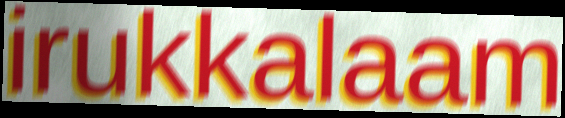
irukkalaam